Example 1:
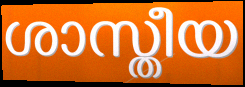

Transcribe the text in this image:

ശാസ്തീയ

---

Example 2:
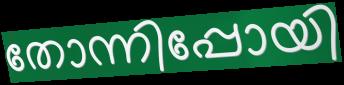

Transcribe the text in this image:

തോന്നിപ്പോയി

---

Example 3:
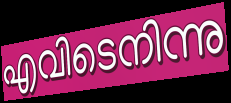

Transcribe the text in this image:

എവിടെനിന്നു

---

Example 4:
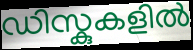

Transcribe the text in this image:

ഡിസ്കുകളിൽ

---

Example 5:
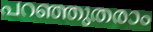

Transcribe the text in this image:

പറഞ്ഞുതരാം